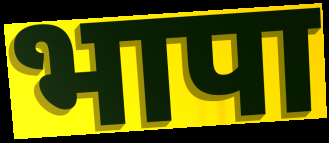
भापा